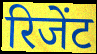
रिजेंट